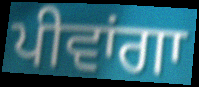
ਪੀਵਾਂਗਾ